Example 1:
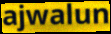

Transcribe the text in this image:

ajwalun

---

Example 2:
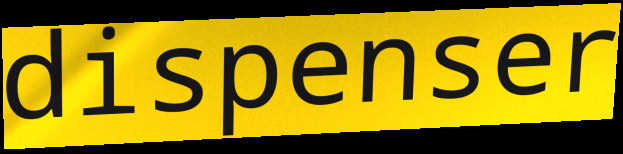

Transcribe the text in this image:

dispenser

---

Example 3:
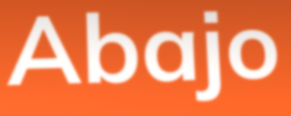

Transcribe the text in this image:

Abajo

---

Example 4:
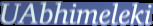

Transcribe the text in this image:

UAbhimeleki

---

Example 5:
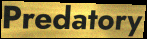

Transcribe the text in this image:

Predatory